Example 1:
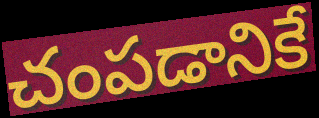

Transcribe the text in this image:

చంపడానికే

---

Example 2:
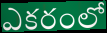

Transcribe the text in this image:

ఎకరంలో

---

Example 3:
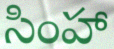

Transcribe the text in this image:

సింహా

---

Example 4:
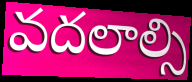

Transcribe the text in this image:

వదలాల్సి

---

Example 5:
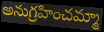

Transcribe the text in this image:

అనుగ్రహించమ్మా